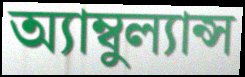
অ্যাম্বুল্যান্স